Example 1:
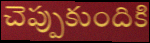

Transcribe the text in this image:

చెప్పుకుందికి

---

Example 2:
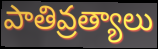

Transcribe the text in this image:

పాతివ్రత్యాలు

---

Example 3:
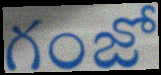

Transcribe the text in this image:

గంజో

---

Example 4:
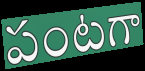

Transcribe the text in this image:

పంటగా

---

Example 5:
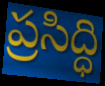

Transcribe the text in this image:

ప్రసిద్ధి